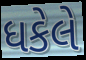
ધકેલે